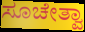
ಸೂಚೇತ್ವಾ